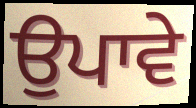
ਉਪਾਵੇ